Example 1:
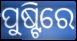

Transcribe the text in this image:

ପୁଷ୍ଟିରେ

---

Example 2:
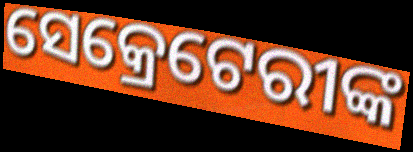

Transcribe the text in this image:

ସେକ୍ରେଟେରୀଙ୍କ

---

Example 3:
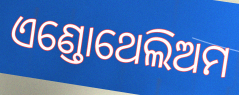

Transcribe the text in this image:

ଏଣ୍ଡୋଥେଲିଅମ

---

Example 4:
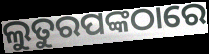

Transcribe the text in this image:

ଲୁତୁରପଙ୍କଠାରେ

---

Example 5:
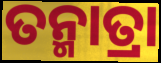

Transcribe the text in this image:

ତନ୍ମାତ୍ରା